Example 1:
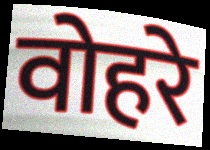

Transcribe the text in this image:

वोहरे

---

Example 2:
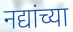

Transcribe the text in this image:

नद्यांच्या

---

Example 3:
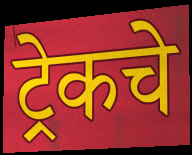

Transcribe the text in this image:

ट्रेकचे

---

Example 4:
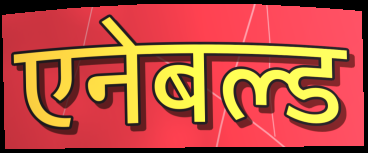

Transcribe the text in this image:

एनेबल्ड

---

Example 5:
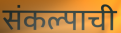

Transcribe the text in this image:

संकल्पाची